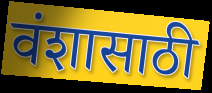
वंशासाठी